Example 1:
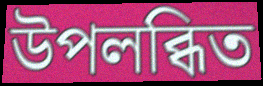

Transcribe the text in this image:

উপলব্ধিত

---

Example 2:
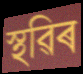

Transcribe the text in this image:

স্থৱিৰ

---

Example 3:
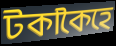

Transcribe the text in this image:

টকাকৈহে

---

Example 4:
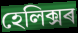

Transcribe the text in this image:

হেলিক্সৰ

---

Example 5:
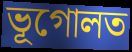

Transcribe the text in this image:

ভূগোলত